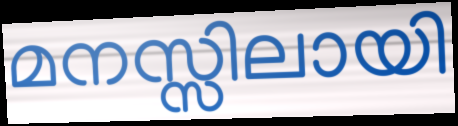
മനസ്സിലായി